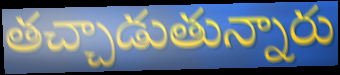
తచ్చాడుతున్నారు